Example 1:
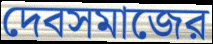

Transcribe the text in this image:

দেবসমাজের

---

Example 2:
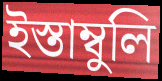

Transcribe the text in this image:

ইস্তাম্বুলি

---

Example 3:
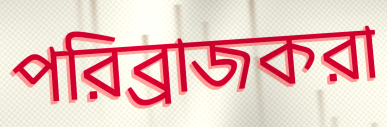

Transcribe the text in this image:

পরিব্রাজকরা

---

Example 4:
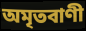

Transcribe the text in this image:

অমৃতবাণী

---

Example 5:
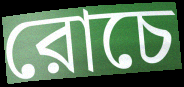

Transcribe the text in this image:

রোচে